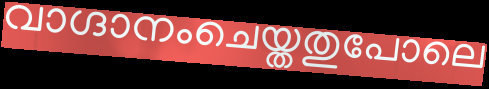
വാഗ്ദാനംചെയ്തതുപോലെ